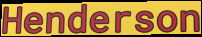
Henderson